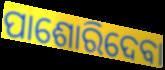
ପାଶୋରିଦେବା